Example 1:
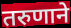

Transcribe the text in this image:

तरुणाने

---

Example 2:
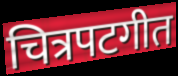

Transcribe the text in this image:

चित्रपटगीत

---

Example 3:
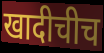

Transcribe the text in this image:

खादीचीच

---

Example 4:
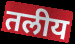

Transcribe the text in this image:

तलीय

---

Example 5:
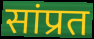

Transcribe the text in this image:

सांप्रत